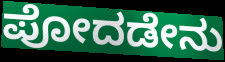
ಪೋದಡೇನು